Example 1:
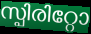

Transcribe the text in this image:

സ്പിരിറ്റോ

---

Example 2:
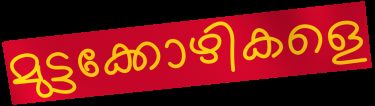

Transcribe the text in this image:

മുട്ടക്കോഴികളെ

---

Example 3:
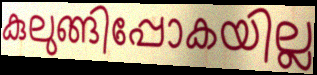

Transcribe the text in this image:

കുലുങ്ങിപ്പോകയില്ല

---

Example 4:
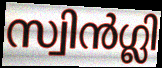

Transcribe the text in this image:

സ്വിൻഗ്ലി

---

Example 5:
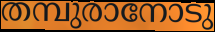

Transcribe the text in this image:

തമ്പുരാനോടു